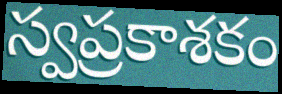
స్వప్రకాశకం